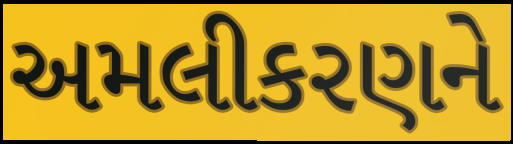
અમલીકરણને